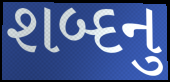
શબ્દનુ